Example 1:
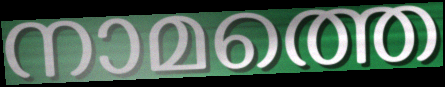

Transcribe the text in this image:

നാമത്തെ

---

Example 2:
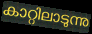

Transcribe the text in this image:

കാറ്റിലാടുന്നു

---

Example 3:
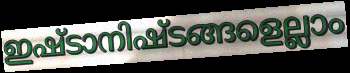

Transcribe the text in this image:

ഇഷ്ടാനിഷ്ടങ്ങളെല്ലാം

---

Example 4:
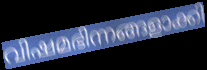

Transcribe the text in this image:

വിഷമഭിന്നങ്ങളാക്കി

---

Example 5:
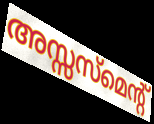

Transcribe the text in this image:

അസ്സസ്മെന്റ്